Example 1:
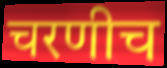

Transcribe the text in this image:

चरणीच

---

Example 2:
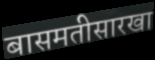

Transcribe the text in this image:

बासमतीसारखा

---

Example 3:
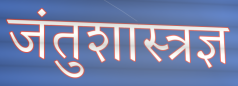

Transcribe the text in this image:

जंतुशास्त्रज्ञ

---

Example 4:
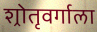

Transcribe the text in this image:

श्रोतृवर्गाला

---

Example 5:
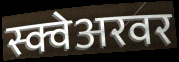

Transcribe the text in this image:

स्क्वेअरवर